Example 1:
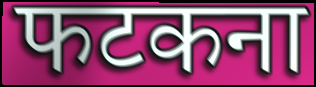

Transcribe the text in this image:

फटकना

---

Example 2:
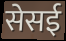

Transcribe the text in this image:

सेसई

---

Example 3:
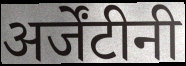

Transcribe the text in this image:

अर्जेंटीनी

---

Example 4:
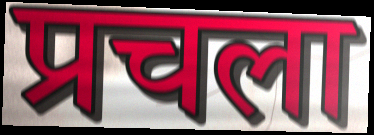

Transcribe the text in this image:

प्रचला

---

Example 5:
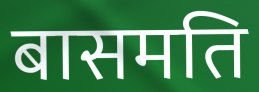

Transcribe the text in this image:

बासमति